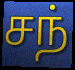
சந்